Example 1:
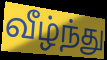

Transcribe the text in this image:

வீழ்ந்து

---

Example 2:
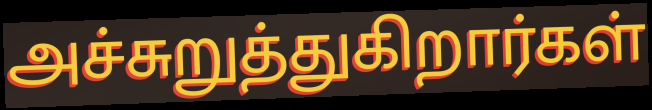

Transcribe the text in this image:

அச்சுறுத்துகிறார்கள்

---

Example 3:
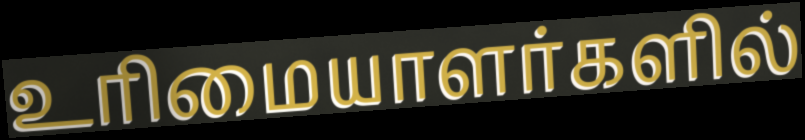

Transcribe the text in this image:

உரிமையாளர்களில்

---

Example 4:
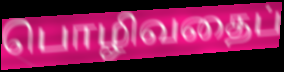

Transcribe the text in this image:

பொழிவதைப்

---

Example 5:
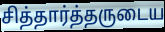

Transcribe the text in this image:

சித்தார்த்தருடைய